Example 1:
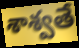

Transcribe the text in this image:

శాశ్వతే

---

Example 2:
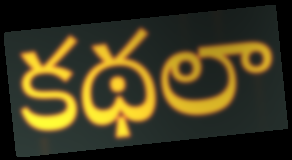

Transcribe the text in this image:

కథలా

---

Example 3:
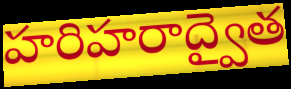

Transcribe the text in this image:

హరిహరాద్వైత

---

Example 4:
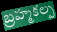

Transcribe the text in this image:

బ్రహ్మకల్ప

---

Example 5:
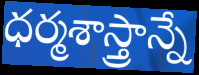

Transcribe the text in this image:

ధర్మశాస్త్రాన్నే